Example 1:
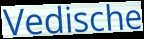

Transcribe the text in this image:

Vedische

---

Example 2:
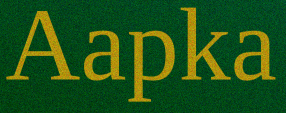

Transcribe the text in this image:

Aapka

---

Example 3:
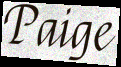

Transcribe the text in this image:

Paige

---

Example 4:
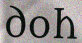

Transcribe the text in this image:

doh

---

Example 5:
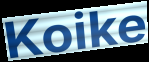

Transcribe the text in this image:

Koike